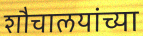
शौचालयांच्या